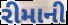
રીમાની